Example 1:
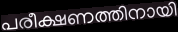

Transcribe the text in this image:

പരീക്ഷണത്തിനായി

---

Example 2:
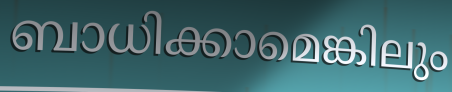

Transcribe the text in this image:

ബാധിക്കാമെങ്കിലും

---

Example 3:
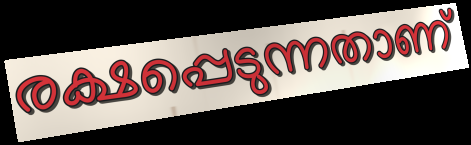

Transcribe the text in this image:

രക്ഷപ്പെടുന്നതാണ്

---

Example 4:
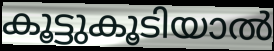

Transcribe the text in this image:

കൂട്ടുകൂടിയാൽ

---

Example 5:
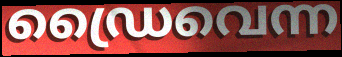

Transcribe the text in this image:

ഡ്രൈവെന്ന